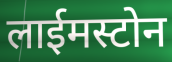
लाईमस्टोन